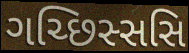
ગચ્છિસ્સસિ